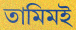
তামিমই